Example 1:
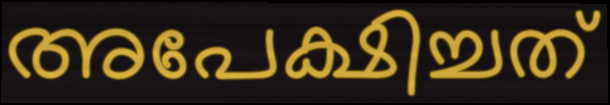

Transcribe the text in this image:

അപേക്ഷിച്ചത്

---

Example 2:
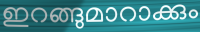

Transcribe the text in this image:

ഇറങ്ങുമാറാക്കും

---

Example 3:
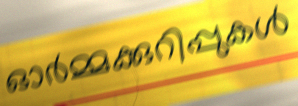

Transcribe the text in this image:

ഓർമ്മക്കുറിപ്പുകൾ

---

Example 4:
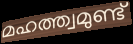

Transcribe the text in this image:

മഹത്ത്വമുണ്ട്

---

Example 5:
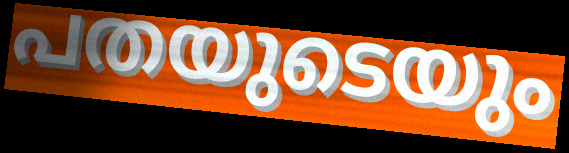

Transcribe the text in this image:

പതയുടെയും